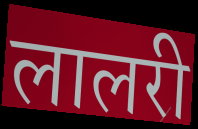
लालरी